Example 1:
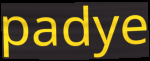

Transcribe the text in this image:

padye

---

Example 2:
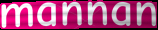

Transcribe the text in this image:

mannan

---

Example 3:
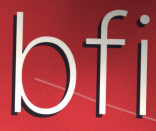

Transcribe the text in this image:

bfi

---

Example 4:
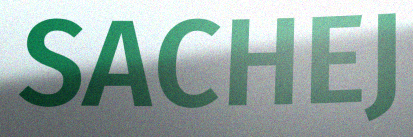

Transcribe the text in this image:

SACHEJ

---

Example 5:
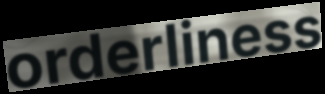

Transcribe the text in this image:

orderliness